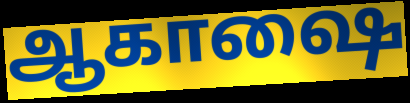
ஆகாஷை